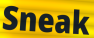
Sneak